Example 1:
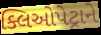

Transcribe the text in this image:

ક્લિઓપેટ્રાને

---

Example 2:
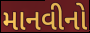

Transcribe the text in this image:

માનવીનો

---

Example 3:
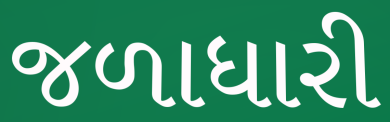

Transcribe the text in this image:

જળાધારી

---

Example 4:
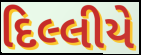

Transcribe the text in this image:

દિલ્લીયે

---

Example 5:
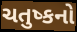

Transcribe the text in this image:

ચતુષ્કનો